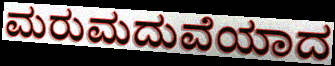
ಮರುಮದುವೆಯಾದ